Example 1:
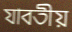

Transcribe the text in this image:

যাবতীয়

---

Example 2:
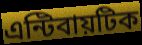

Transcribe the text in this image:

এন্টিবায়টিক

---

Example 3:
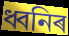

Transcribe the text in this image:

ধ্বনিৰ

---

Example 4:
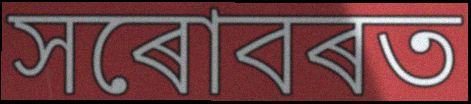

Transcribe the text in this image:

সৰোবৰত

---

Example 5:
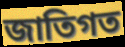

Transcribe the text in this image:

জাতিগত